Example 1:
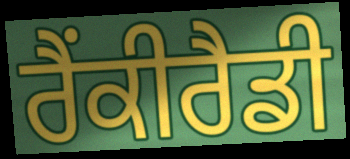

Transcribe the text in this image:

ਰੈਂਕੀਰੈਡੀ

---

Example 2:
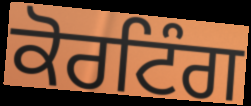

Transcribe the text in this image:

ਕੋਰਟਿੰਗ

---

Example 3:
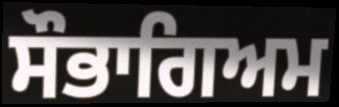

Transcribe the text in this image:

ਸੌਭਾਗਿਅਮ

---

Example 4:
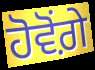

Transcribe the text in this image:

ਹੋਵੋਂਗ਼ੇ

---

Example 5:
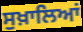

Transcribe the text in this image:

ਸੁਖ਼ਾਲਿਆਂ